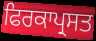
ਫਿਰਕਾਪ੍ਰਸਤ